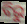
ବିଭୁ